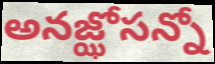
అనజ్ఝోసన్నో